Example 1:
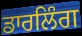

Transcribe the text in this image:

ਡਾਰਲਿੰਗ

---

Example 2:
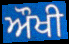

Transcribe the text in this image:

ਔਖੀ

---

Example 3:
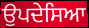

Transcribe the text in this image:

ਉਪਦੇਸਿਆ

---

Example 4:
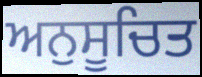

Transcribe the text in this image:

ਅਨੁਸੂਚਿਤ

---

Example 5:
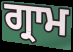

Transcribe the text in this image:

ਗ੍ਰਾਮ